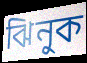
ঝিনুক